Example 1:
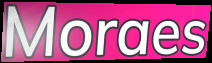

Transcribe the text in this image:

Moraes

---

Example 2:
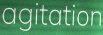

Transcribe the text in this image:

agitation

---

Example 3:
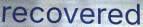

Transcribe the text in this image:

recovered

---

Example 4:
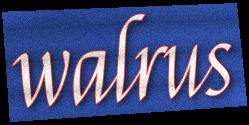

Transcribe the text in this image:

walrus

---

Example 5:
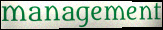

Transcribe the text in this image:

management